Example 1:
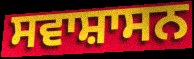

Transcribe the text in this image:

ਸਵਾਸ਼ਾਸਨ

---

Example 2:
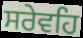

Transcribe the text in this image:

ਸਰੇਵਹਿ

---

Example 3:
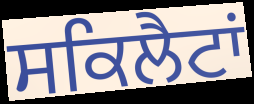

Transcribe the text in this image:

ਸਕਿਲੈਟਾਂ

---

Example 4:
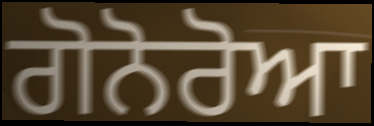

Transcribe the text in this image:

ਗੋਨੋਰੋਆ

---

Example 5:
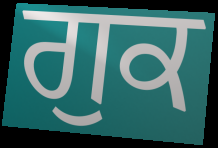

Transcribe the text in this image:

ਗੁਕ